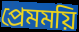
প্রেমময়ি